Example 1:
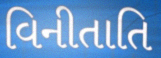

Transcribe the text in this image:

વિનીતાતિ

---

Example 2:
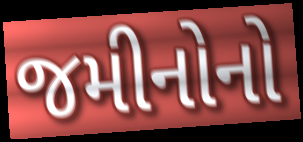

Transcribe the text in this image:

જમીનોનો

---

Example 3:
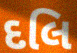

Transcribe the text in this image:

દલિ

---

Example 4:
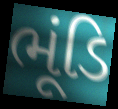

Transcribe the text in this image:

ભૂંડિ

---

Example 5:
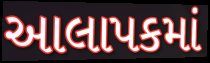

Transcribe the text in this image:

આલાપકમાં